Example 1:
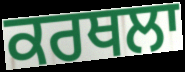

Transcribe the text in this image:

ਕਰਥਲਾ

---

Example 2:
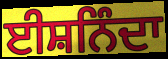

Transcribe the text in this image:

ਈਸ਼ਨਿੰਦਾ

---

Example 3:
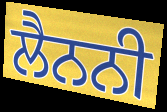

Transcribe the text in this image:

ਲੈਨਨੀ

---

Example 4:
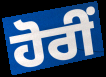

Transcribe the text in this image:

ਹੋਰੀਂ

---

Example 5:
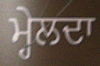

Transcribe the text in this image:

ਮ੍ਹੇਲਦਾ